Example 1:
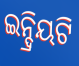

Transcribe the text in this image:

ଇନ୍ଦ୍ରିୟଟି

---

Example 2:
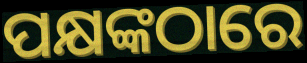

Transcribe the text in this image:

ପକ୍ଷଙ୍କଠାରେ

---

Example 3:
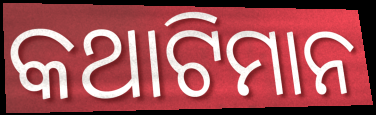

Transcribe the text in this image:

କଥାଟିମାନ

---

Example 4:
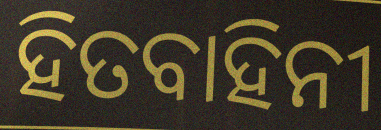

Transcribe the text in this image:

ହିତବାହିନୀ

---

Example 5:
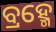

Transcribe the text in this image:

ବ୍ରହ୍ମେ